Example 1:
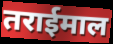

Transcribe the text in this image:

तराईमाल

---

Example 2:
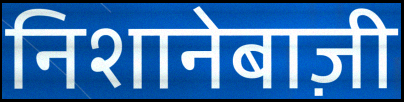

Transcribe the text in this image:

निशानेबाज़ी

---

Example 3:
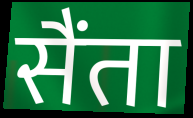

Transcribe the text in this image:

सैंता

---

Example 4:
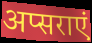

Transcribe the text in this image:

अप्सराएं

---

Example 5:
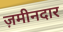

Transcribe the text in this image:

ज़मीनदार